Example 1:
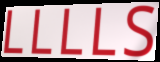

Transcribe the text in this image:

LLLLS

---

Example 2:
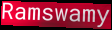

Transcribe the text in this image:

Ramswamy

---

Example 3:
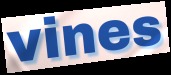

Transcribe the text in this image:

vines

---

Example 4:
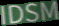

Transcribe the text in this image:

IDSM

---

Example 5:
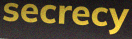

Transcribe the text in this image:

secrecy